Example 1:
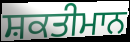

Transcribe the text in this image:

ਸ਼ਕਤੀਮਾਨ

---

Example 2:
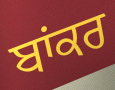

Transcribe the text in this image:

ਬਾਂਕਰ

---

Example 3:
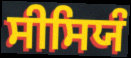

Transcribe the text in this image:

ਸੀਸਿਯੰ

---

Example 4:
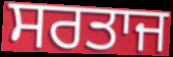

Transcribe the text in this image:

ਸਰਤਾਜ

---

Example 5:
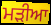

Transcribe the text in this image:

ਮੜੀਆ